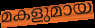
മകളുമായ